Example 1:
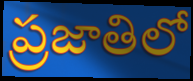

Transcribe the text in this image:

ప్రజాతిలో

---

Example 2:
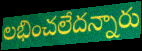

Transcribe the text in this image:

లభించలేదన్నారు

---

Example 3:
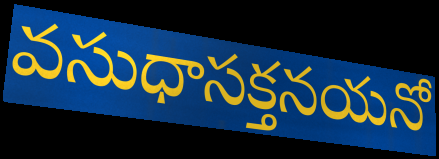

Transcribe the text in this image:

వసుధాసక్తనయనో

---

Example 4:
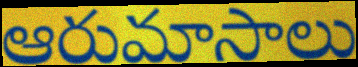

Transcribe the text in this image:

ఆరుమాసాలు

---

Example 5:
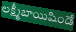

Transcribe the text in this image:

లక్ష్మీబాయిషిండే